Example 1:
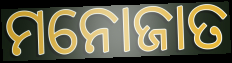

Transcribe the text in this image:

ମନୋଜାତ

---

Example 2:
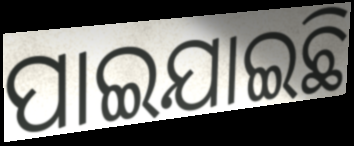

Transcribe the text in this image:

ପାଇଯାଇଛି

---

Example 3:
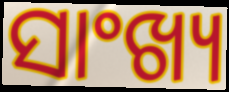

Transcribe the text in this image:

ସାଂଖ୍ଯ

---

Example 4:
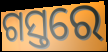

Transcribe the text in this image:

ଗସ୍ତରେ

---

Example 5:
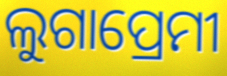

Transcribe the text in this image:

ଲୁଗାପ୍ରେମୀ